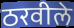
ठरवीले